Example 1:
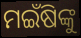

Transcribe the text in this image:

ମଇଁଷିଙ୍କୁ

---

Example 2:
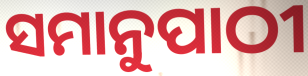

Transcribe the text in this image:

ସମାନୁପାଠୀ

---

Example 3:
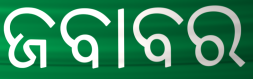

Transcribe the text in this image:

ଜବାବର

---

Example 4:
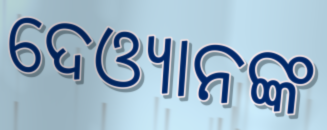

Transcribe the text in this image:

ଦେଓ୍ୟାନଙ୍କ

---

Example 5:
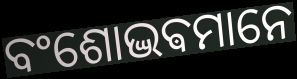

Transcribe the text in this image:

ବଂଶୋଦ୍ଭଵମାନେ